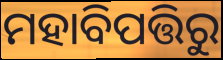
ମହାବିପତ୍ତିରୁ